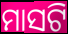
ମାସଟି